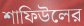
শাফিউলের